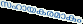
സഹായകരമാകും